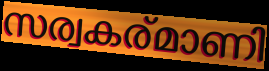
സര്വകര്മാണി